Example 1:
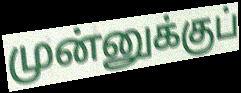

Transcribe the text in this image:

முன்னுக்குப்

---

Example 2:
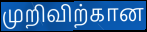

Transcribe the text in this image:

முறிவிற்கான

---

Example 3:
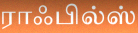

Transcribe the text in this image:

ராஃபில்ஸ்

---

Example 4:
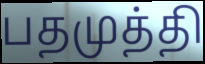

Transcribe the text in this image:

பதமுத்தி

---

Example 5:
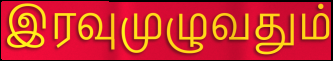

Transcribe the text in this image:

இரவுமுழுவதும்